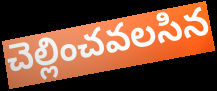
చెల్లించవలసిన